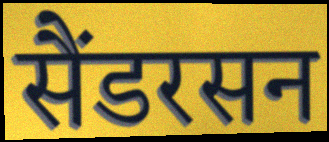
सैंडरसन